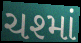
ચશ્માં